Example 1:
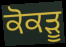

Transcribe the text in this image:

ਕੋਕੜੂ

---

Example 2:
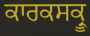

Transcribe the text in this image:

ਕਾਰਕਸਕ੍ਰੂ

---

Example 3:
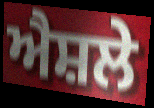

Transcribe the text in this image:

ਐਸ਼ਲੇ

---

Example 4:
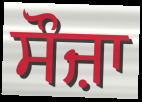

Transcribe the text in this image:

ਸੌਜ਼ਾ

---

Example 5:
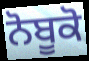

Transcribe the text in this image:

ਨੋਬੂਕੋ